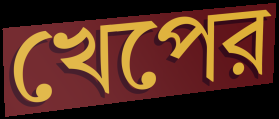
খেপের